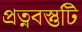
প্রত্নবস্তুটি